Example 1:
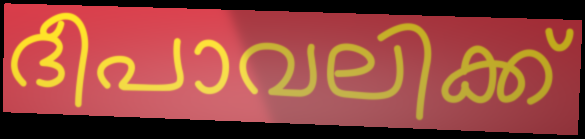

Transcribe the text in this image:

ദീപാവലിക്ക്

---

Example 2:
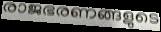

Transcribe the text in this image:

രാജഭരണങ്ങളുടെ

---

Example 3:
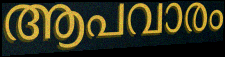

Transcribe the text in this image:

ആപവാരം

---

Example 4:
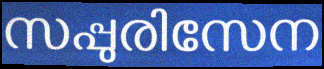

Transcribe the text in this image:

സപ്പുരിസേന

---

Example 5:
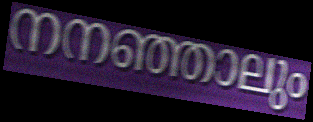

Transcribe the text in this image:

നനഞ്ഞാലും